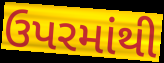
ઉપરમાંથી